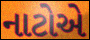
નાટોએ